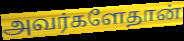
அவர்களேதான்